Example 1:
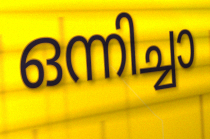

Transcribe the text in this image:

ഒന്നിച്ചാ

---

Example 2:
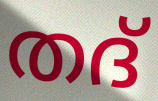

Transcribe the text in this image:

തദ്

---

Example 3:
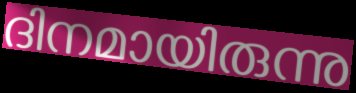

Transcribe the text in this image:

ദിനമായിരുന്നു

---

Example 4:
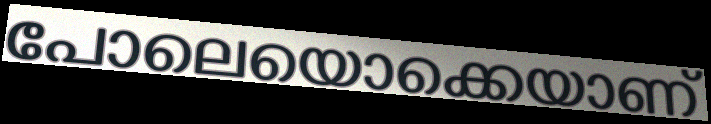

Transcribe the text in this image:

പോലെയൊക്കെയാണ്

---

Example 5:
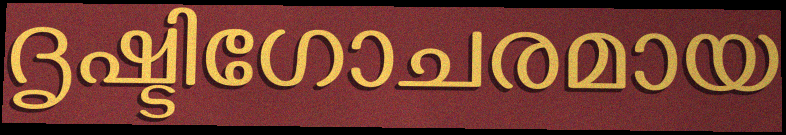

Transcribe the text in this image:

ദൃഷ്ടിഗോചരമായ